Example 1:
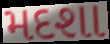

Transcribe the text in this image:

મદશા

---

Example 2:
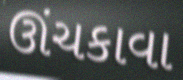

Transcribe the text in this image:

ઊંચકાવા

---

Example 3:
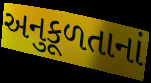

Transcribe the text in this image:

અનુકૂળતાનાં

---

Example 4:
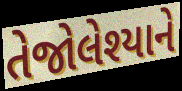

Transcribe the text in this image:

તેજોલેશ્યાને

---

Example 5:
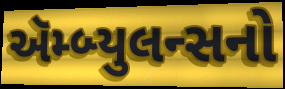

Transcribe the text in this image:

ઍમ્બ્યુલન્સનો